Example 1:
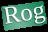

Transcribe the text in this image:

Rog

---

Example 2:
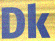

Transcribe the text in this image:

Dk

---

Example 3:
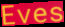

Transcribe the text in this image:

Eves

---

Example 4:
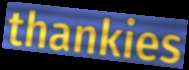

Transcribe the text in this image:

thankies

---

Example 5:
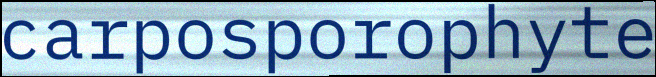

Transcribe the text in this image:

carposporophyte